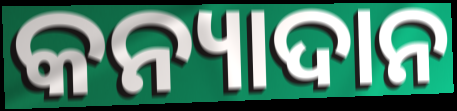
କନ୍ୟାଦାନ